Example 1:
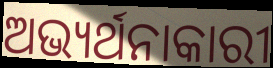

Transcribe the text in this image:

ଅଭ୍ୟର୍ଥନାକାରୀ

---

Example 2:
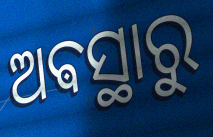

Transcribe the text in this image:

ଅଵସ୍ଥାରୁ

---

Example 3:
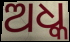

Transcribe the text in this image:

ଅଧ୍କ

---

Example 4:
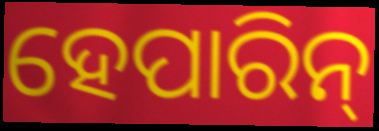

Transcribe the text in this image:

ହେପାରିନ୍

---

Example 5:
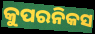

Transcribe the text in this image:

କୁପରନିକସ